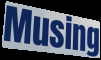
Musing